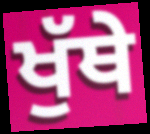
ਖੁੱਥੇ